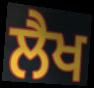
ਲੈਖ